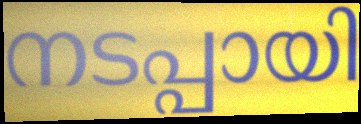
നടപ്പായി